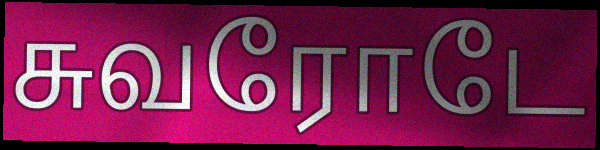
சுவரோடே